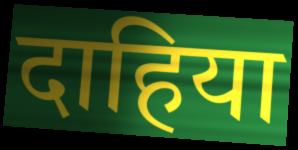
दाहिया